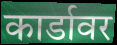
कार्डावर